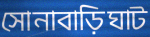
সোনাবাড়িঘাট